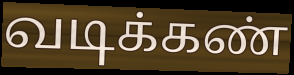
வடிக்கண்